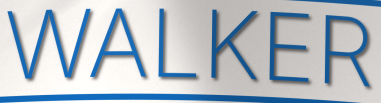
WALKER